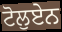
ਟੋਲੁਏਨ